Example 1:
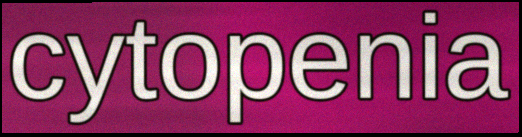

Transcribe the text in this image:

cytopenia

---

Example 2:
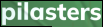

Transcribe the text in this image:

pilasters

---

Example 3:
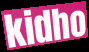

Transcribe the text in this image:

kidho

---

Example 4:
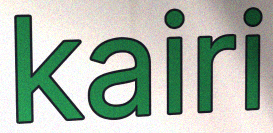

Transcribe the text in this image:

kairi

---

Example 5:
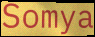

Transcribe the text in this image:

Somya